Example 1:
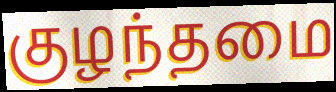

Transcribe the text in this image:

குழந்தமை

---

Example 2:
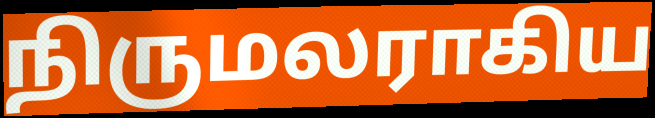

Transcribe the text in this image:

நிருமலராகிய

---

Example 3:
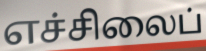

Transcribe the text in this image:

எச்சிலைப்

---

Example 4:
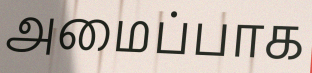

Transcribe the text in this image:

அமைப்பாக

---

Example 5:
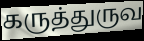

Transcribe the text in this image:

கருத்துருவ